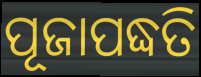
ପୂଜାପଦ୍ଧତି